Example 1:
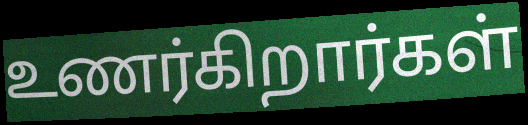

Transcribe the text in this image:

உணர்கிறார்கள்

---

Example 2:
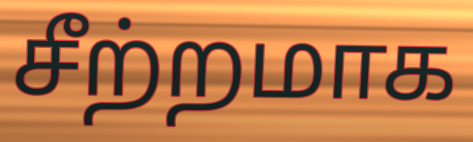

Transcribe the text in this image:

சீற்றமாக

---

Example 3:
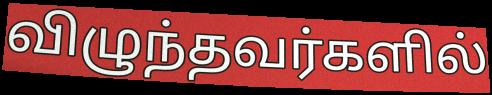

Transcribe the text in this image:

விழுந்தவர்களில்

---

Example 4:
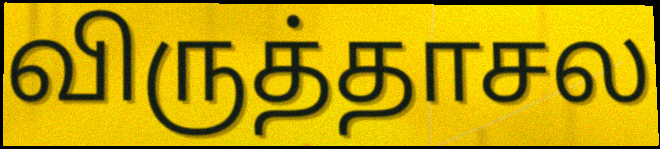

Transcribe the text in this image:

விருத்தாசல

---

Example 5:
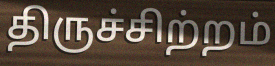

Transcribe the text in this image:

திருச்சிற்றம்